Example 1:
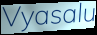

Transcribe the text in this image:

Vyasalu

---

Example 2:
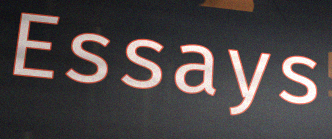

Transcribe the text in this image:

Essays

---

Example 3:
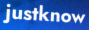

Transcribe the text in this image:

justknow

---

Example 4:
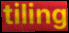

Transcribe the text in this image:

tiling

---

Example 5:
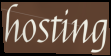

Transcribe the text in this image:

hosting